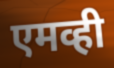
एमव्ही